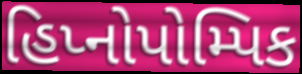
હિપ્નોપોમ્પિક